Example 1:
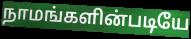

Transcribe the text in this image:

நாமங்களின்படியே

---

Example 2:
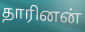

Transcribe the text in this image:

தாரினன்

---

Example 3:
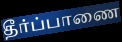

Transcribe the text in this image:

தீர்ப்பாணை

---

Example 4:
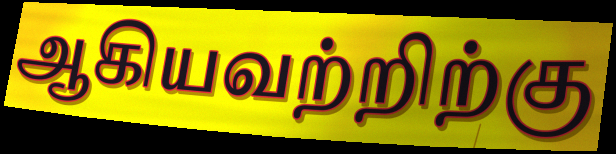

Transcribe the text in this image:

ஆகியவற்றிற்கு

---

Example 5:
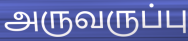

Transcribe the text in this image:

அருவருப்பு